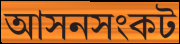
আসনসংকট